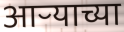
आऱ्याच्या